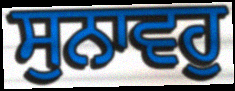
ਸੁਨਾਵਹੁ